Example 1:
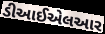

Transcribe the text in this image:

ડીઆઈએલઆર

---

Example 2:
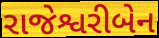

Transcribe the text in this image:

રાજેશ્વરીબેન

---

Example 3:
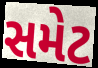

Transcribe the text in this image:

સમેટ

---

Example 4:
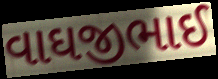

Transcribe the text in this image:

વાઘજીભાઈ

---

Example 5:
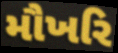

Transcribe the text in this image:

મૌખરિ